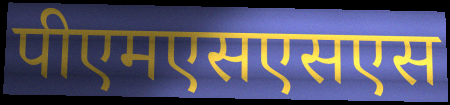
पीएमएसएसएस